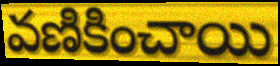
వణికించాయి